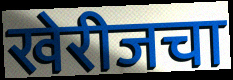
खेरीजचा